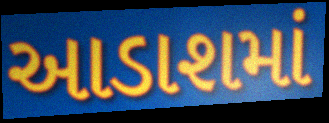
આડાશમાં